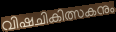
വിഷചികിത്സകനും